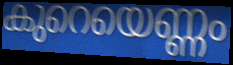
കുറെയെണ്ണം